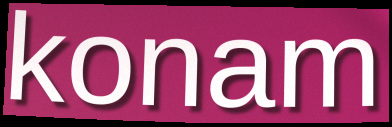
konam